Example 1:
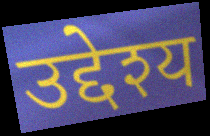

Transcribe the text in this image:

उद्देश्य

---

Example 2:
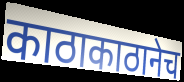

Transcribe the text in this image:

काठाकाठानेच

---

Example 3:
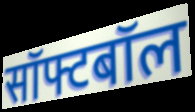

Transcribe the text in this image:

सॉफ्टबॉल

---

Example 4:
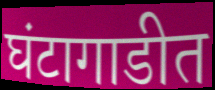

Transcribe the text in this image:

घंटागाडीत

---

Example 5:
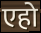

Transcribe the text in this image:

एहो